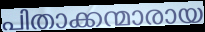
പിതാക്കന്മാരായ